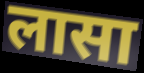
लासा